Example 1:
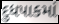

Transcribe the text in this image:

દુધપાકમાં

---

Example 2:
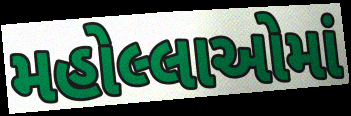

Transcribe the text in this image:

મહોલ્લાઓમાં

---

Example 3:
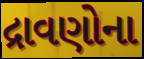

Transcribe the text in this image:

દ્રાવણોના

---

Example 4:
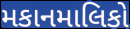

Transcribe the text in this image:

મકાનમાલિકો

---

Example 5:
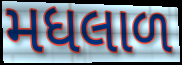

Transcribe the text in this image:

મધલાળ